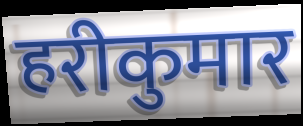
हरीकुमार